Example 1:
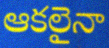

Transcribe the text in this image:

ఆకలైనా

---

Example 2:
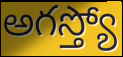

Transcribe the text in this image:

అగస్త్యో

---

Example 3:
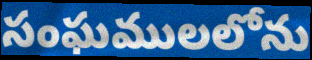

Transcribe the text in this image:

సంఘములలోను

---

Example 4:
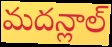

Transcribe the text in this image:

మదన్లాల్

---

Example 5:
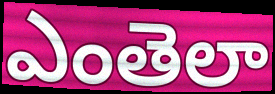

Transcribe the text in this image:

ఎంతెలా